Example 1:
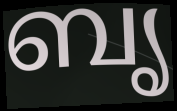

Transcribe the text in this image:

ബൃ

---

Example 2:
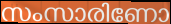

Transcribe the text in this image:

സംസാരിണോ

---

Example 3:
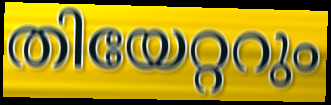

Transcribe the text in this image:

തിയേറ്ററും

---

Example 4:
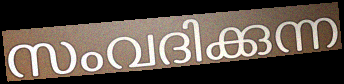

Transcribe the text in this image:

സംവദിക്കുന്ന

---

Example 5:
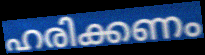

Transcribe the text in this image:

ഹരിക്കണം